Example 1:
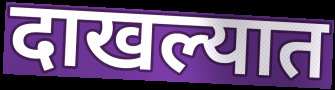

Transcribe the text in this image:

दाखल्यात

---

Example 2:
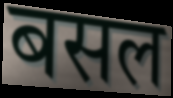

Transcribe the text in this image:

बसल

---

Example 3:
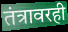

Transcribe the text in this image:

तंत्रावरही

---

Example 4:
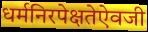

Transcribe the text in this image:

धर्मनिरपेक्षतेऐवजी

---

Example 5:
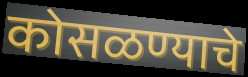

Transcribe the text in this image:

कोसळण्याचे